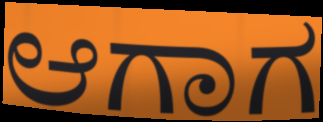
ಆಗಾಗ